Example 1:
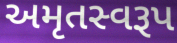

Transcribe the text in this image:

અમૃતસ્વરૂપ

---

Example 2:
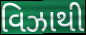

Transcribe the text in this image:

વિઝાથી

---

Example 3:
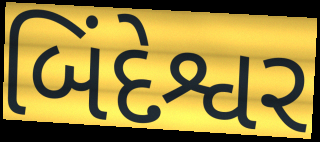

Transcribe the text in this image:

બિંદેશ્વર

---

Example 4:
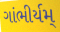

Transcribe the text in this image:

ગાંભીર્યમ્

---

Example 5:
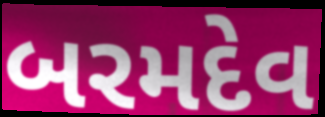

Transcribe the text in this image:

બરમદેવ